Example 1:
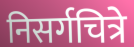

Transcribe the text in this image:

निसर्गचित्रे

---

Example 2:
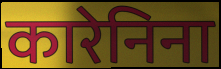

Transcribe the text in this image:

कारेनिना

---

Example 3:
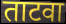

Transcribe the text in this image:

ताटवा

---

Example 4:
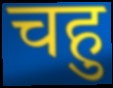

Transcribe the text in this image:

चहु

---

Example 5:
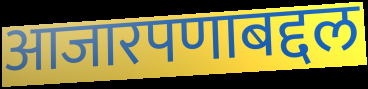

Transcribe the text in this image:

आजारपणाबद्दल